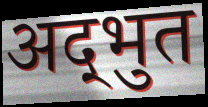
अद्‌भुत